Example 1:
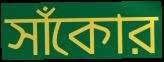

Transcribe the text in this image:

সাঁকোর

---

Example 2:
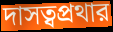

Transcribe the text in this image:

দাসত্বপ্রথার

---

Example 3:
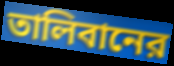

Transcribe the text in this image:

তালিবানের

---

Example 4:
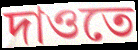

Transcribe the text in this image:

দাওতে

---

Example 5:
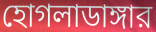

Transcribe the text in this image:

হোগলাডাঙ্গার